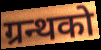
ग्रन्थको